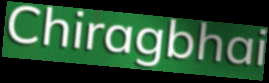
Chiragbhai